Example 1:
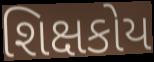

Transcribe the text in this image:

શિક્ષકોય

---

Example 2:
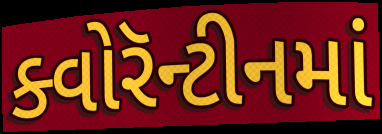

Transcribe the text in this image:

ક્વોરૅન્ટીનમાં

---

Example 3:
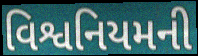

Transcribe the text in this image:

વિશ્વનિયમની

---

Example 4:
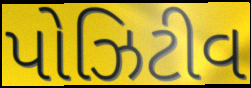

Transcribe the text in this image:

પોઝિટીવ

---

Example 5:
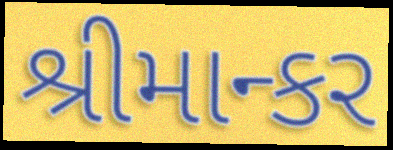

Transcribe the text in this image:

શ્રીમાન્કર